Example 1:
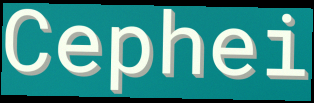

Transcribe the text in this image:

Cephei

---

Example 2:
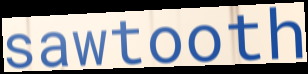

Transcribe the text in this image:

sawtooth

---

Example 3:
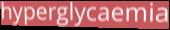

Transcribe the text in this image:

hyperglycaemia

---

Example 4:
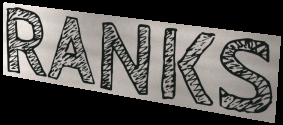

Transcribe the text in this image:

RANKS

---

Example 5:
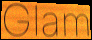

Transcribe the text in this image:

Glam